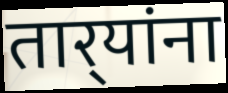
तार्‍यांना